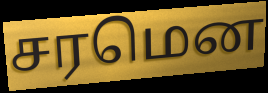
சரமென